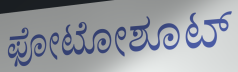
ಫೋಟೋಶೂಟ್